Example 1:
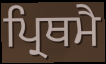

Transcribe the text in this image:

ਪ੍ਰਿਥਮੈ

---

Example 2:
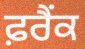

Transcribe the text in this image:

ਫ਼ਰੈਂਕ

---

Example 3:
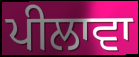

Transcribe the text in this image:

ਪੀਲਾਵਾ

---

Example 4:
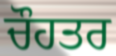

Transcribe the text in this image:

ਚੌਹਤਰ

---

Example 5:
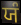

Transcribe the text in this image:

ਯੰ